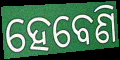
ହେବେଣି